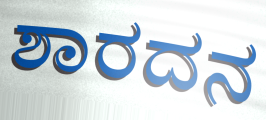
ಶಾರದನ